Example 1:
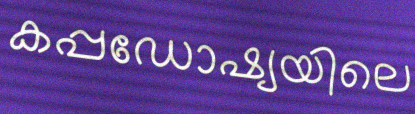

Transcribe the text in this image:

കപ്പഡോഷ്യയിലെ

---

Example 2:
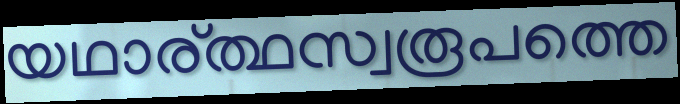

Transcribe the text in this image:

യഥാര്ത്ഥസ്വരൂപത്തെ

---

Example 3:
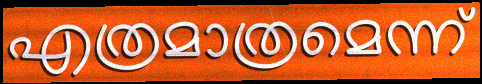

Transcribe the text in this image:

എത്രമാത്രമെന്ന്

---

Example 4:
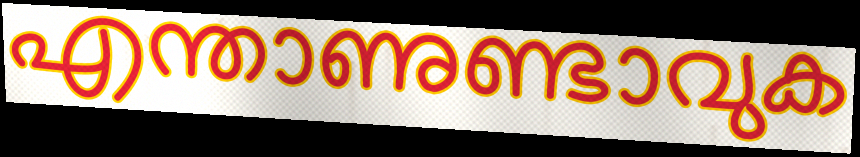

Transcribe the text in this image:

എന്താണുണ്ടാവുക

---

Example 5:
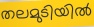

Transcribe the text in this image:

തലമുടിയിൽ